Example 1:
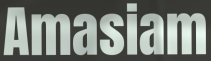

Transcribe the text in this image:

Amasiam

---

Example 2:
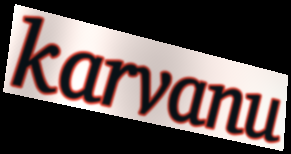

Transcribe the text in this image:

karvanu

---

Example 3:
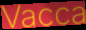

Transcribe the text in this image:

Vacca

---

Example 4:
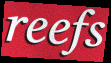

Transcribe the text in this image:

reefs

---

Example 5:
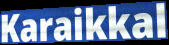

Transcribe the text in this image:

Karaikkal